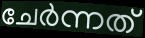
ചേർന്നത്